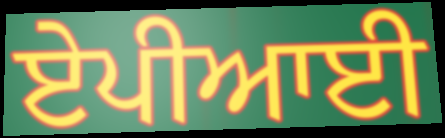
ਏਪੀਆਈ